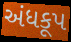
અંધકૂપ